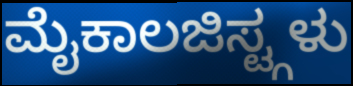
ಮೈಕಾಲಜಿಸ್ಟ್ಗಳು